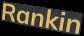
Rankin